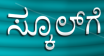
ಸ್ಕೂಲ್‌ಗೆ